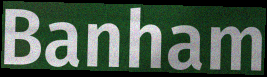
Banham